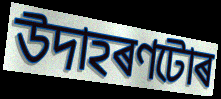
উদাহৰণটোৰ